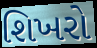
શિખરો